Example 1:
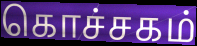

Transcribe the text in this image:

கொச்சகம்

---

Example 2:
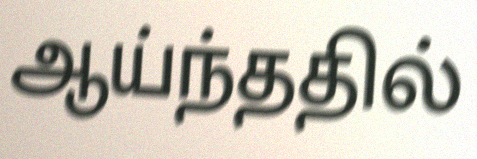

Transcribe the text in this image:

ஆய்ந்ததில்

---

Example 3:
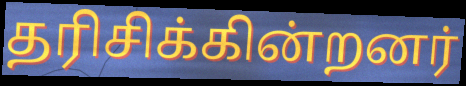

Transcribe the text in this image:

தரிசிக்கின்றனர்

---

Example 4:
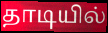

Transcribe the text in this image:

தாடியில்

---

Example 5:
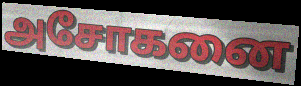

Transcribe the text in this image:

அசோகனை